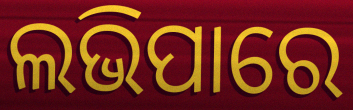
ଲଭିପାରେ